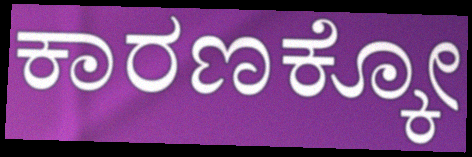
ಕಾರಣಕ್ಕೋ